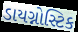
ડાયગ્નોસ્ટિક